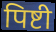
पिष्टी